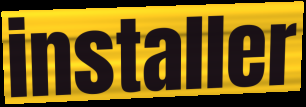
installer